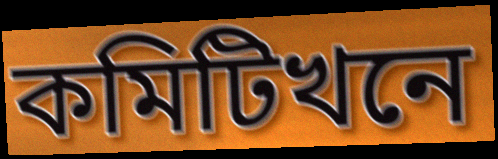
কমিটিখনে